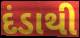
દંડાથી